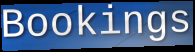
Bookings